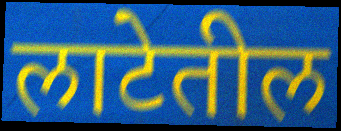
लाटेतील